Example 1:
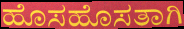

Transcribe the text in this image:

ಹೊಸಹೊಸತಾಗಿ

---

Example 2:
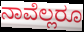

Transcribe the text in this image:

ನಾವೆಲ್ಲರೂ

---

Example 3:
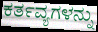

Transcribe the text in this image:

ಕರ್ತವ್ಯಗಳನ್ನು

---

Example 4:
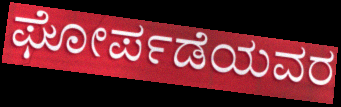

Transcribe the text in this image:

ಘೋರ್ಪಡೆಯವರ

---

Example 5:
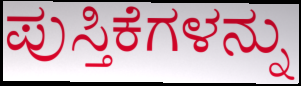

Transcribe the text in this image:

ಪುಸ್ತಿಕೆಗಳನ್ನು